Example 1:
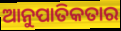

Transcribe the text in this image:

ଆନୁପାତିକତାର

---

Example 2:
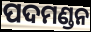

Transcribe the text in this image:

ପଦମଣ୍ଡନ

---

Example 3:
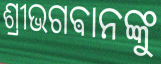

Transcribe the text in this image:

ଶ୍ରୀଭଗଵାନଙ୍କୁ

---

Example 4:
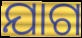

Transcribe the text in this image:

ଯାଗ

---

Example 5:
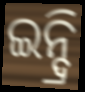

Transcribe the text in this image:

ଇନ୍ଦ୍ରି